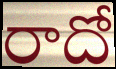
రాదో